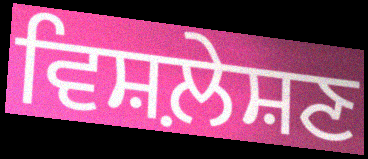
ਵਿਸ਼ਲ਼ੇਸ਼ਣ